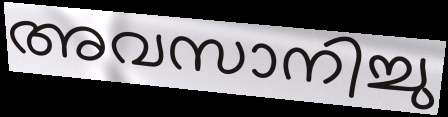
അവസാനിച്ചു